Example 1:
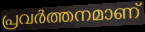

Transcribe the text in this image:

പ്രവർത്തനമാണ്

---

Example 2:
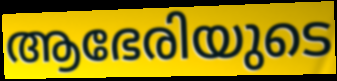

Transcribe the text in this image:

ആഭേരിയുടെ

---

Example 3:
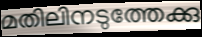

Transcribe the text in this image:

മതിലിനടുത്തേക്കു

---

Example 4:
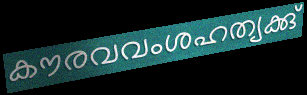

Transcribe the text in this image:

കൗരവവംശഹത്യക്കു്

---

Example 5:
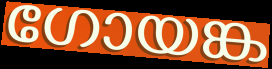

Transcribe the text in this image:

ഗോയങ്ക